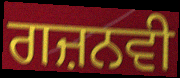
ਗਜ਼ਨਵੀ